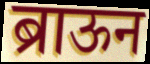
ब्राऊन